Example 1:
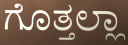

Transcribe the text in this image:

ಗೊತ್ತಲ್ಲಾ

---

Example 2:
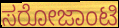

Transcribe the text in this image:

ಸರೋಜಾಂಟಿ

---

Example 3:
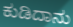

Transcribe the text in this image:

ಕುಡಿದಾನು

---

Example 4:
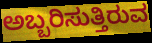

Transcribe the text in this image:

ಅಬ್ಬರಿಸುತ್ತಿರುವ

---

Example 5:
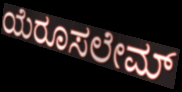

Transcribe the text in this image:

ಯೆರೂಸಲೇಮ್